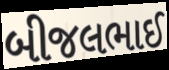
બીજલભાઈ